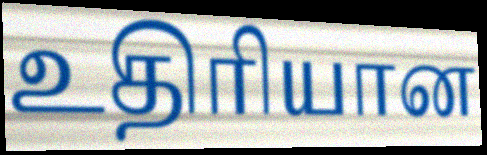
உதிரியான